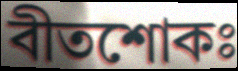
বীতশোকঃ